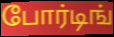
போர்டிங்